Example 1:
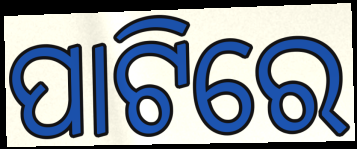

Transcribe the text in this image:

ପାଟିରେ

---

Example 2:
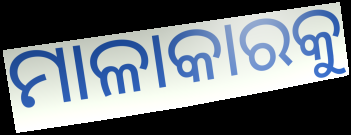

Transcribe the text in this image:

ମାଳାକାରକୁ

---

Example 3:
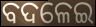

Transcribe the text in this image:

ବଦଳେଇ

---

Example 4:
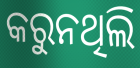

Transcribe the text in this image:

କରୁନଥିଲି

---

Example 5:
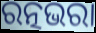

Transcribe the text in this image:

ରତ୍ନଭରା